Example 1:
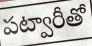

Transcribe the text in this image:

పట్వారీతో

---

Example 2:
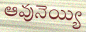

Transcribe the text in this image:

ఆవునెయ్యి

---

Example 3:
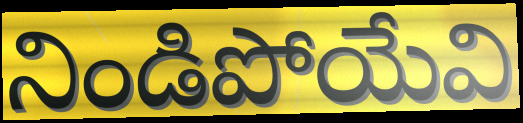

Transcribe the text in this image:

నిండిపోయేవి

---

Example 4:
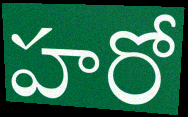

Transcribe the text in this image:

హరో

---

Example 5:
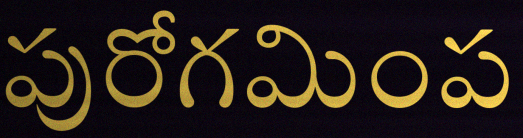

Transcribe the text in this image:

పురోగమింప